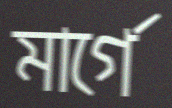
মার্গে